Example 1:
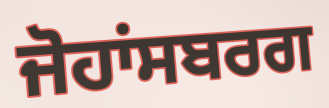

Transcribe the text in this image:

ਜੋਹਾਂਸਬਰਗ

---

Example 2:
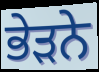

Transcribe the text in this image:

ਭੇੜਨੇ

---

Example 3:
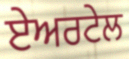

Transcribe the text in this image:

ਏਅਰਟੇਲ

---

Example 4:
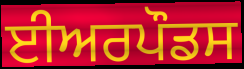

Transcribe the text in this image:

ਈਅਰਪੌਡਸ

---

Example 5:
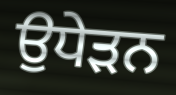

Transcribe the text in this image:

ਉਧੇੜਨ